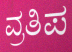
ವ್ರತಿಪ